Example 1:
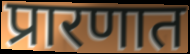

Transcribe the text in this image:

प्रारणात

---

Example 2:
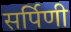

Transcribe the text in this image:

सर्पिणी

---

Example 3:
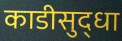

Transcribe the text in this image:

काडीसुद्धा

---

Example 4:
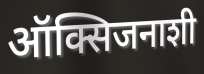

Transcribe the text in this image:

ऑक्सिजनाशी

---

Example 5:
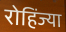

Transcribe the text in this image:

रोहिंज्या